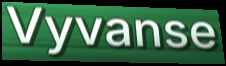
Vyvanse